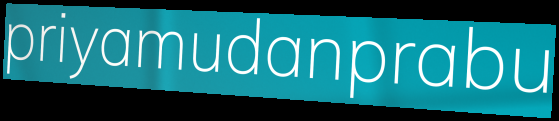
priyamudanprabu